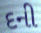
દની